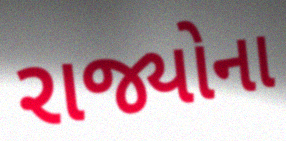
રાજ્યોના